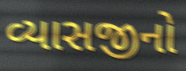
વ્યાસજીનો